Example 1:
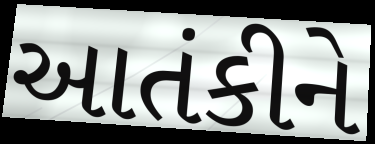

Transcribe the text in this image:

આતંકીને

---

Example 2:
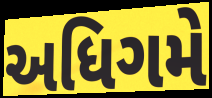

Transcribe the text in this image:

અધિગમે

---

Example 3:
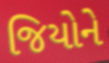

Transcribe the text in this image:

જિયોને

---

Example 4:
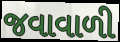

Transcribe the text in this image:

જવાવાળી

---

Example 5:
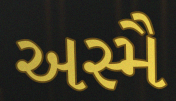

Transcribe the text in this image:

અસ્મૈ